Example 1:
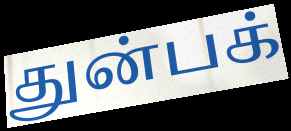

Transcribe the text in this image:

துன்பக்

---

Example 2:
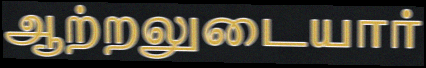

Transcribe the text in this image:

ஆற்றலுடையார்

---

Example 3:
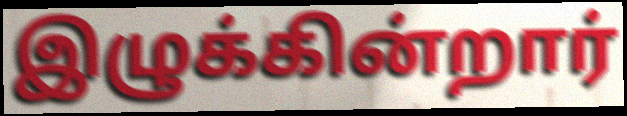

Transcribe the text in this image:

இழுக்கின்றார்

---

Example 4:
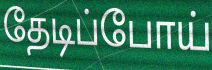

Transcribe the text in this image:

தேடிப்போய்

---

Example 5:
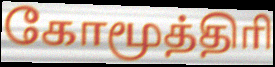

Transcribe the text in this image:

கோமூத்திரி